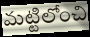
మట్టిలోంచి